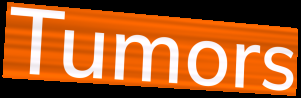
Tumors